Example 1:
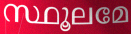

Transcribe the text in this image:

സ്ഥൂലമേ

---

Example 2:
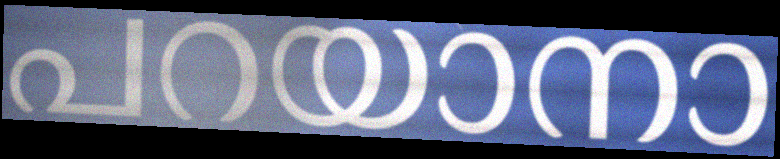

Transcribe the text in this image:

പറയാനാ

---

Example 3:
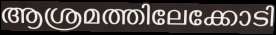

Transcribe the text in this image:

ആശ്രമത്തിലേക്കോടി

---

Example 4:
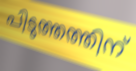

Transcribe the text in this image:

പിടുത്തത്തിന്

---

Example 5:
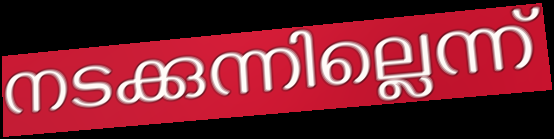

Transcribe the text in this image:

നടക്കുന്നില്ലെന്ന്